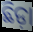
ଛିଡ଼ା